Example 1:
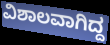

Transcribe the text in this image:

ವಿಶಾಲವಾಗಿದ್ದ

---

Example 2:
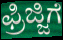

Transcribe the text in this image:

ಫ್ರಿಜ್ಜಿಗೆ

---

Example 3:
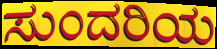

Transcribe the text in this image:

ಸುಂದರಿಯ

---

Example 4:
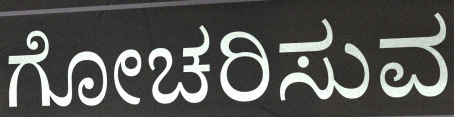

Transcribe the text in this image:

ಗೋಚರಿಸುವ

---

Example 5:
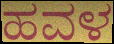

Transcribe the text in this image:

ಹವಳ